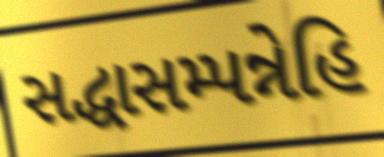
સદ્ધાસમ્પન્નેહિ